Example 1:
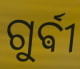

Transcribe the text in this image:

ଗୁର୍ଵୀ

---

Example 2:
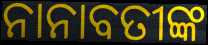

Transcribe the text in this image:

ନାନାବତୀଙ୍କ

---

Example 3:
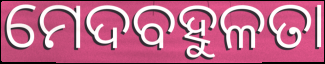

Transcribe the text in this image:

ମେଦବହୁଳତା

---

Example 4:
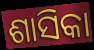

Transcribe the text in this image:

ଶାସିକା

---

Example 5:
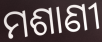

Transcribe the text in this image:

ମଶାଣୀ